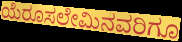
ಯೆರೂಸಲೇಮಿನವರಿಗೂ